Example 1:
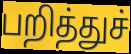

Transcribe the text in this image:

பறித்துச்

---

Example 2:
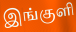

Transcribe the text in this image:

இங்குளி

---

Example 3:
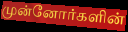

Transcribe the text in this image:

முன்னோர்களின்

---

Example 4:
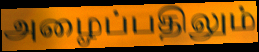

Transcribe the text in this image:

அழைப்பதிலும்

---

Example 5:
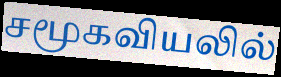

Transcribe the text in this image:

சமூகவியலில்